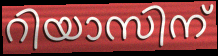
റിയാസിന്